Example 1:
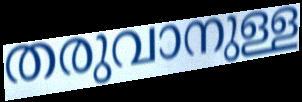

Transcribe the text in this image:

തരുവാനുള്ള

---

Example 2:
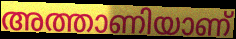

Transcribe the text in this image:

അത്താണിയാണ്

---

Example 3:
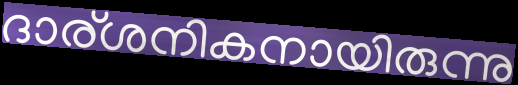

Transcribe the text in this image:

ദാര്ശനികനായിരുന്നു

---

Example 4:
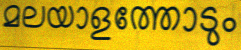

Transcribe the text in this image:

മലയാളത്തോടും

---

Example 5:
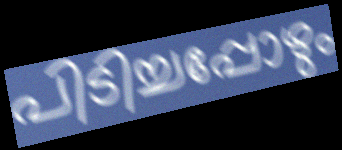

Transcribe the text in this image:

പിടിച്ചപ്പോഴും